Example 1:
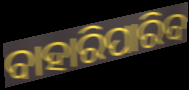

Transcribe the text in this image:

ବାହାରିପାରିବ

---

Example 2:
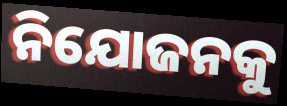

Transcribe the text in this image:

ନିଯୋଜନକୁ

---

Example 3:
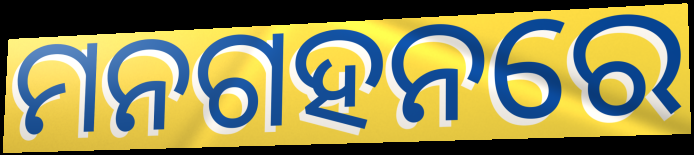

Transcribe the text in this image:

ମନଗହନରେ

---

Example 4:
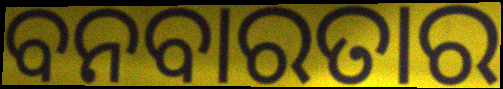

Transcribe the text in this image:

ବନବାରତାର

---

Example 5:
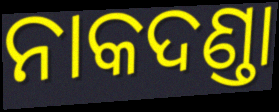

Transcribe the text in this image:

ନାକଦଣ୍ଡା